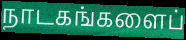
நாடகங்களைப்